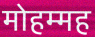
मोहम्मह